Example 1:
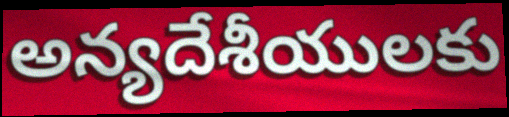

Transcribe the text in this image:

అన్యదేశీయులకు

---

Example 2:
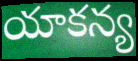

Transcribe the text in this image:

యాకన్య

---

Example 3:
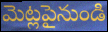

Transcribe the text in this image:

మెట్లపైనుండి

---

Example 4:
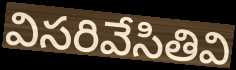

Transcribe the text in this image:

విసరివేసితివి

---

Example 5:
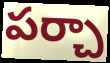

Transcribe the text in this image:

పర్చా